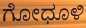
ಗೋಧೂಳಿ